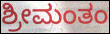
ಶ್ರೀಮಂತಂ